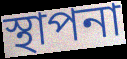
স্থাপনা